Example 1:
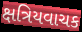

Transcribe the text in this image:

ક્ષત્રિયવાચક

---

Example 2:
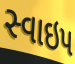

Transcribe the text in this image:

સ્વાઇપ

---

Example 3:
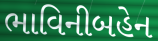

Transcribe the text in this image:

ભાવિનીબહેન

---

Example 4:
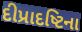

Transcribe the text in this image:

દીપ્રાદષ્ટિના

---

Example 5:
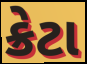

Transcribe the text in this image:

ક્રેટા